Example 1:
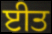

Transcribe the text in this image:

ਈਤ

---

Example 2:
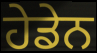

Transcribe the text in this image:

ਹੇਡੇਨ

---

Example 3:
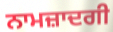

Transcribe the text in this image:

ਨਾਮਜ਼ਾਦਗੀ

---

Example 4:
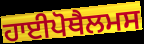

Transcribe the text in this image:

ਹਾਈਪੋਥੈਲਮਸ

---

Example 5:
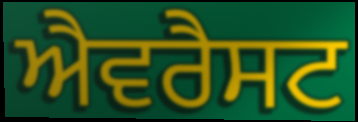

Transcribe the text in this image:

ਐਵਰੈਸਟ